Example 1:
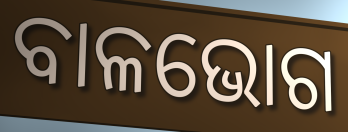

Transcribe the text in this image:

ବାଳଭୋଗ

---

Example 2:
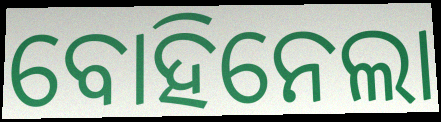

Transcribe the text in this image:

ବୋହିନେଲା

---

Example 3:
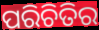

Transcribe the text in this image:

ପରିଚିତିର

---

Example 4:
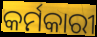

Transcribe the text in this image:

କର୍ମକାରୀ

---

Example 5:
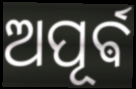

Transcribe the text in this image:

ଅପୂର୍ଵ